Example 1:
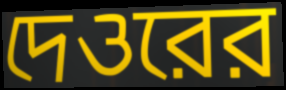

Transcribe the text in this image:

দেওরের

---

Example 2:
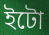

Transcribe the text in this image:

ইটো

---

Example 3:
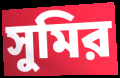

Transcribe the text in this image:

সুমির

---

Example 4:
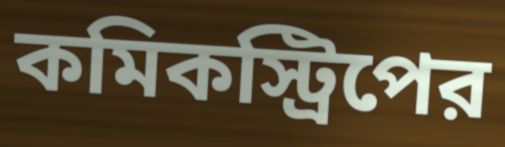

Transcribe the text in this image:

কমিকস্ট্রিপের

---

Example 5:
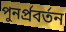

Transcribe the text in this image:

পুনর্প্রবর্তন